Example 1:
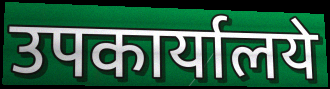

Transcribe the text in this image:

उपकार्यालये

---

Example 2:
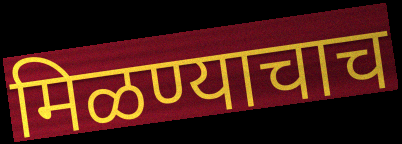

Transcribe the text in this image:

मिळण्याचाच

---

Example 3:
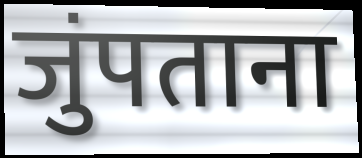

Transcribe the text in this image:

जुंपताना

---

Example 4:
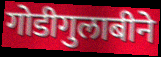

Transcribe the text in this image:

गोडीगुलाबीने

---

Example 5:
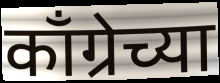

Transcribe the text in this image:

काँग्रेच्या